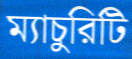
ম্যাচুরিটি